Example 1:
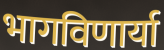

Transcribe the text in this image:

भागविणार्या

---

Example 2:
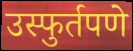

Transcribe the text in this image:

उस्फुर्तपणे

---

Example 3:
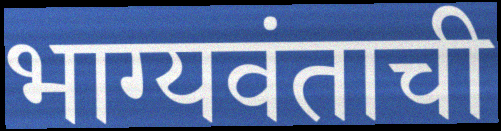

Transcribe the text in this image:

भाग्यवंताची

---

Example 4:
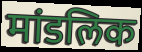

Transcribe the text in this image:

मांडलिक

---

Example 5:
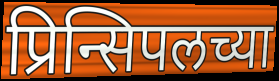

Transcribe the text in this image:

प्रिन्सिपलच्या